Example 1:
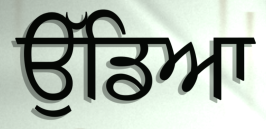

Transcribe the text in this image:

ਉੱਡਿਆ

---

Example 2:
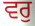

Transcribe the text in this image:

ਵਰੁ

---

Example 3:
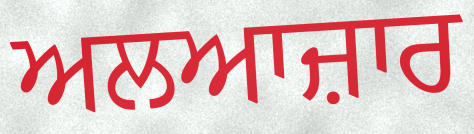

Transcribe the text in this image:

ਅਲਆਜ਼ਾਰ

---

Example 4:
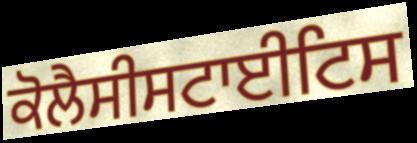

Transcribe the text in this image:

ਕੋਲੈਸੀਸਟਾਈਟਿਸ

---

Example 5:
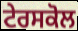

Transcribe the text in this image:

ਟੇਰਸਕੋਲ